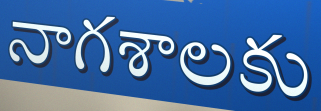
నాగశాలకు